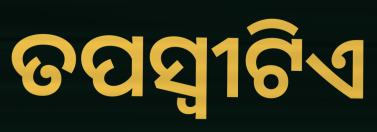
ତପସ୍ୱୀଟିଏ